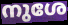
നുശേ